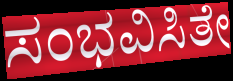
ಸಂಭವಿಸಿತೇ